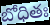
బోధితః